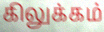
கிலுக்கம்